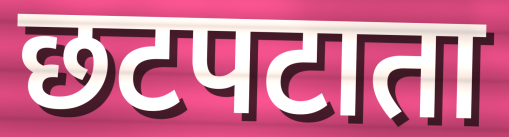
छटपटाता